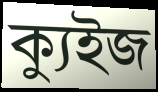
ক্যুইজ